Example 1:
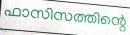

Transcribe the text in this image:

ഫാസിസത്തിന്റെ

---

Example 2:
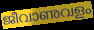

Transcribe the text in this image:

ജീവാണുവളം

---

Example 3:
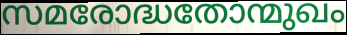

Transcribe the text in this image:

സമരോദ്ധതോന്മുഖം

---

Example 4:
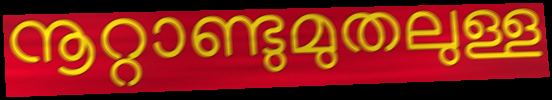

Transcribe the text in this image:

നൂറ്റാണ്ടുമുതലുള്ള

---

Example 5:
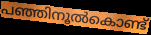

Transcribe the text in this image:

പഞ്ഞിനൂൽകൊണ്ട്